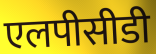
एलपीसीडी